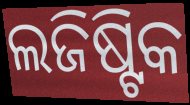
ଲଜିଷ୍ଟିକ